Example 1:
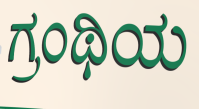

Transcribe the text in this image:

ಗ್ರಂಥಿಯ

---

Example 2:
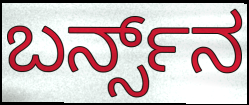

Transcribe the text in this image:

ಬರ್ನ್ಸ್‌ನ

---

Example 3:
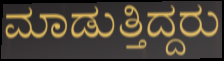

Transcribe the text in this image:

ಮಾಡುತ್ತಿದ್ದರು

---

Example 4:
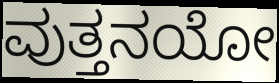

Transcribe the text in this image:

ವುತ್ತನಯೋ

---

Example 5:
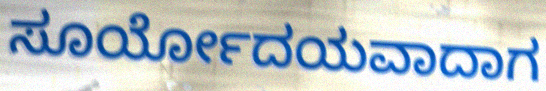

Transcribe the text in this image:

ಸೂರ್ಯೋದಯವಾದಾಗ